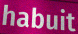
habuit